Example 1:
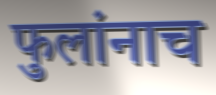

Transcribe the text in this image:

फुलांनाच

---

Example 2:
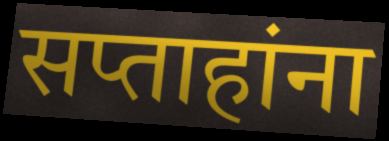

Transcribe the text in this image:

सप्ताहांना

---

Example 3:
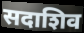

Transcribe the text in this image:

सदाशिव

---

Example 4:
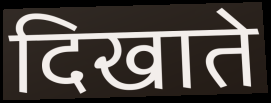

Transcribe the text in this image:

दिखाते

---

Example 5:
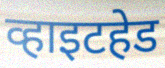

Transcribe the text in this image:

व्हाइटहेड